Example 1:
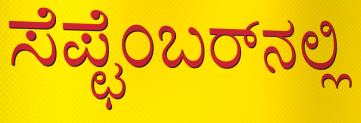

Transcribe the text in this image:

ಸೆಪ್ಟೆಂಬರ್‌ನಲ್ಲಿ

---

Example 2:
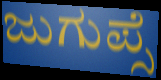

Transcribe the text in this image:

ಜುಗುಪ್ಸೆ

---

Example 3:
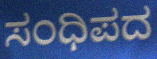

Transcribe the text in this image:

ಸಂಧಿಪದ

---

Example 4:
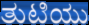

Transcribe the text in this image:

ತುಟಿಯು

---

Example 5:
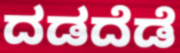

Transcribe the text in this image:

ದಡದೆಡೆ